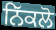
ਨਿੱਕਲੋ